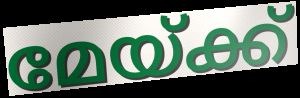
മേയ്ക്ക്